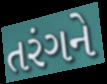
તરંગને